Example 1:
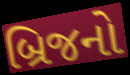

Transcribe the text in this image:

બ્રિજનો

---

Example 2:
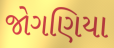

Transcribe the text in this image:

જોગણિયા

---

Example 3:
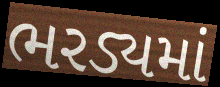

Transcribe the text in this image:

ભરડ્યમાં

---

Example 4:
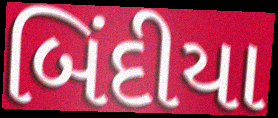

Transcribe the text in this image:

બિંદીયા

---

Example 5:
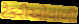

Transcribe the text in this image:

ટેકરીઓવાળી